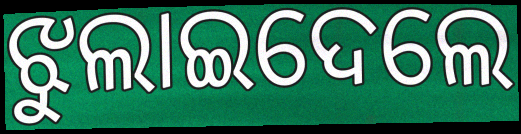
ଝୁଲାଇଦେଲେ